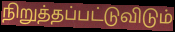
நிறுத்தப்பட்டுவிடும்